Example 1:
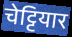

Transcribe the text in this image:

चेट्टियार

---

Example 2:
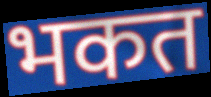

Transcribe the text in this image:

भकत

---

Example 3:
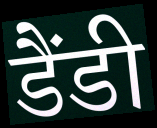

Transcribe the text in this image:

डैंडी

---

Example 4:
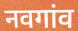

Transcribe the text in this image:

नवगांव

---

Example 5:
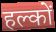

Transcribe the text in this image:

हल्कों